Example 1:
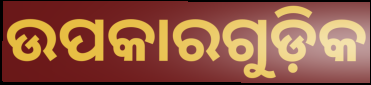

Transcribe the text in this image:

ଉପକାରଗୁଡ଼ିକ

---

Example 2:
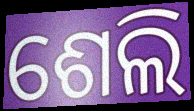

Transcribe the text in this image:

ଶେଲି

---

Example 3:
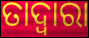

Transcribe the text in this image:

ତାଦ୍ବାରା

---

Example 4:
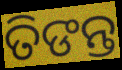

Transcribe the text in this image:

ତିଙନ୍ତ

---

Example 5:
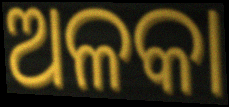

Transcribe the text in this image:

ଅଳକା